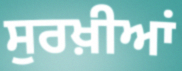
ਸੁਰਖ਼ੀਆਂ